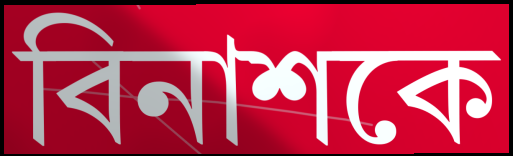
বিনাশকে